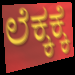
ಲೆಕ್ಕಕ್ಕೆ